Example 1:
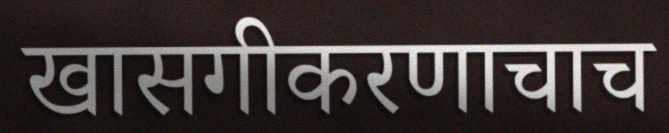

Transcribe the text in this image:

खासगीकरणाचाच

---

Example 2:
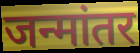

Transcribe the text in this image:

जन्मांतर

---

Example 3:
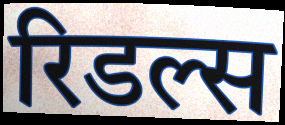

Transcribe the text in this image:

रिडल्स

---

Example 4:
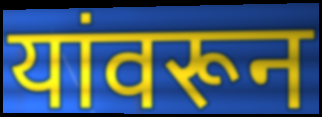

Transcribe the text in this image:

यांवरून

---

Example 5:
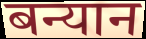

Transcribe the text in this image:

बन्यान